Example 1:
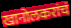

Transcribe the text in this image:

खानोलकरांचं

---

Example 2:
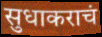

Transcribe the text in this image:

सुधाकराचं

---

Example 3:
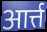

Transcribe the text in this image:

आर्त्त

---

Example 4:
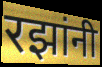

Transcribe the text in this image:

रझांनी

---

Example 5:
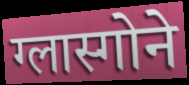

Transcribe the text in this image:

ग्लास्गोने